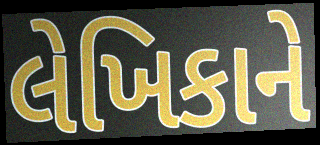
લેખિકાને